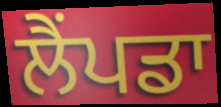
ਲੈਂਪਡਾ